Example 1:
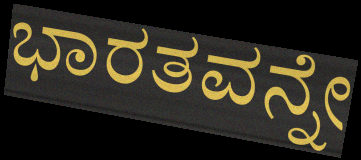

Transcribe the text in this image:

ಭಾರತವನ್ನೇ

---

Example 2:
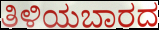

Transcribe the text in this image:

ತಿಳಿಯಬಾರದ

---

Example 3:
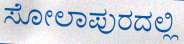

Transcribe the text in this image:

ಸೋಲಾಪುರದಲ್ಲಿ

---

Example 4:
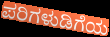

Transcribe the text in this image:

ಪರಿಗಳುಡಿಗೆಯ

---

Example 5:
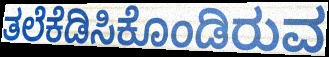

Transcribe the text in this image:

ತಲೆಕೆಡಿಸಿಕೊಂಡಿರುವ